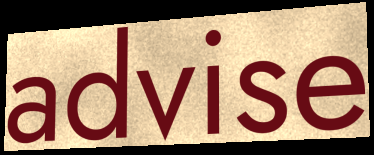
advise